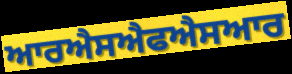
ਆਰਐਸਐਫਐਸਆਰ